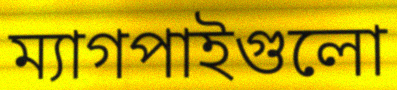
ম্যাগপাইগুলো